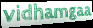
vidhamgaa